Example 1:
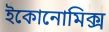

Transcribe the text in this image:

ইকোনোমিক্স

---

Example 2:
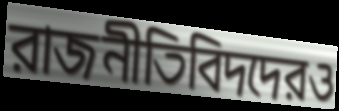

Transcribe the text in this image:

রাজনীতিবিদদেরও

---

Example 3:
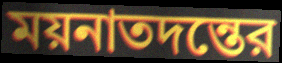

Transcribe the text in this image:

ময়নাতদন্তের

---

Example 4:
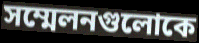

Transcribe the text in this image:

সম্মেলনগুলোকে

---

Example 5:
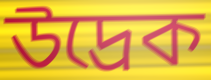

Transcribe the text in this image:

উদ্রেক